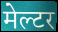
मेल्टर